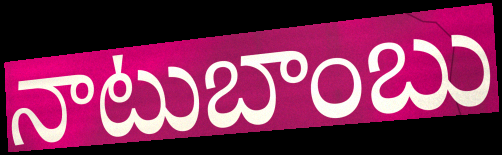
నాటుబాంబు